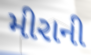
મીરાની